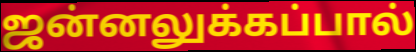
ஜன்னலுக்கப்பால்